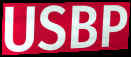
USBP